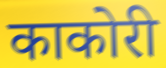
काकोरी